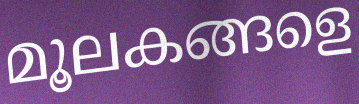
മൂലകങ്ങളെ